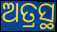
ଅତ୍ରସ୍ଥ